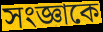
সংজ্ঞাকে